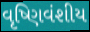
વૃષ્ણિવંશીય